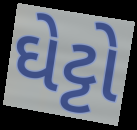
ઘેટ્ટો